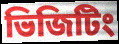
ভিজিটিং